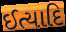
ઈત્યાદિ